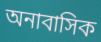
অনাবাসিক